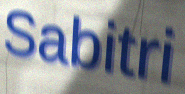
Sabitri